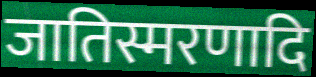
जातिस्मरणादि